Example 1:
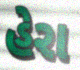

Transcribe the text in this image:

હેરા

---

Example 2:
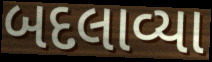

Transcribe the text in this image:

બદલાવ્યા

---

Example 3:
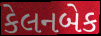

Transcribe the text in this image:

કેલનબેક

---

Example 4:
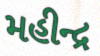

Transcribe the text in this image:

મહીન્દ્ર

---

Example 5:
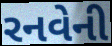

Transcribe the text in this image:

રનવેની